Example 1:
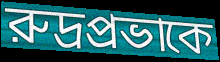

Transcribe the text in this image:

রুদ্রপ্রভাকে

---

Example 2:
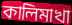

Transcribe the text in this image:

কালিমাখা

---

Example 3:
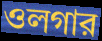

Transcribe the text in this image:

ওলগার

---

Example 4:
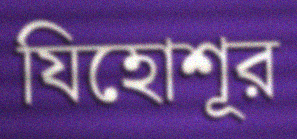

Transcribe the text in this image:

যিহোশূর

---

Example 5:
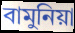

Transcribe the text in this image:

বামুনিয়া